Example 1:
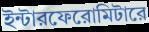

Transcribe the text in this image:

ইন্টারফেরোমিটারে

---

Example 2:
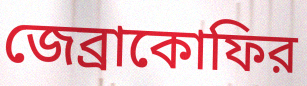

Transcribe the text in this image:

জেব্রাকোফির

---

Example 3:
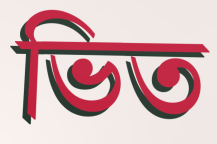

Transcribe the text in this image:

ভিত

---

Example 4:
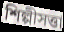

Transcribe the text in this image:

শিল্পীসত্তা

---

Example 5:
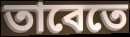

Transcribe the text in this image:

তাবেতে